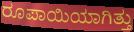
ರೂಪಾಯಿಯಾಗಿತ್ತು